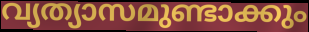
വ്യത്യാസമുണ്ടാക്കും